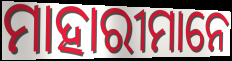
ମାହାରୀମାନେ